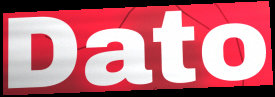
Dato